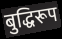
बुद्धिरूप